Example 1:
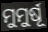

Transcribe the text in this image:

ମୁମୁର୍ଷୂ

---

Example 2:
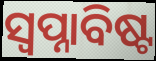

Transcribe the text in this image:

ସ୍ୱପ୍ନାବିଷ୍ଟ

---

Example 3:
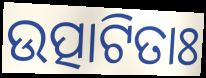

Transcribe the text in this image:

ଉତ୍ପାଟିତାଃ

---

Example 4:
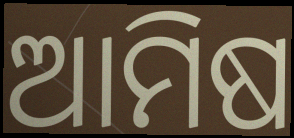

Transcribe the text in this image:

ଆମିଷ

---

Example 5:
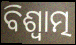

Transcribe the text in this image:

ବିଶ୍ୱାତ୍ମ